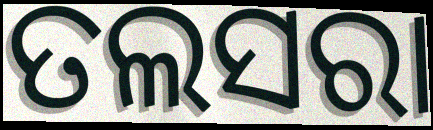
ତଲସରା